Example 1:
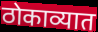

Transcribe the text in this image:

ठोकाव्यात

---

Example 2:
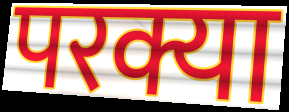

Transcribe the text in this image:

परक्या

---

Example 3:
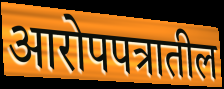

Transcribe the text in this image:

आरोपपत्रातील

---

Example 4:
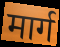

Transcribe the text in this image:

मार्ग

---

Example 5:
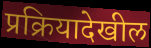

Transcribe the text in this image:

प्रक्रियादेखील